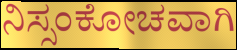
ನಿಸ್ಸಂಕೋಚವಾಗಿ